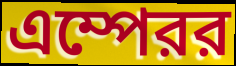
এম্পেরর